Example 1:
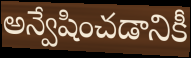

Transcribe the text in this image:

అన్వేషించడానికీ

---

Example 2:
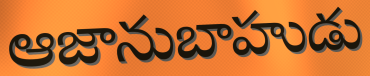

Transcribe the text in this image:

ఆజానుబాహుడు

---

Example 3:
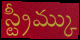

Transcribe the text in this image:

స్ట్రీమ్కు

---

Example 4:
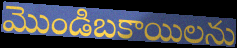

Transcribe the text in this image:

మొండిబకాయిలను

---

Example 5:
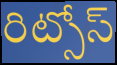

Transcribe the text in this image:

రిట్సోస్